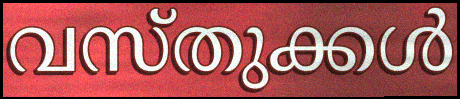
വസ്തുക്കൾ